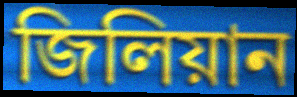
জিলিয়ান